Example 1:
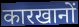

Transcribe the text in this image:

कारखानों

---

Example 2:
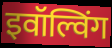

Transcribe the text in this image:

इवॉल्विंग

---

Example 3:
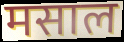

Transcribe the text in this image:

मसाल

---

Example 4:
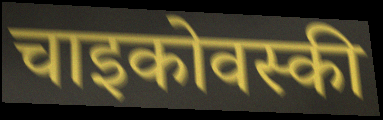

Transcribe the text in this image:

चाइकोवस्की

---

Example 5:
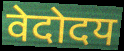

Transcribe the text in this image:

वेदोदय